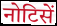
नोटिसें